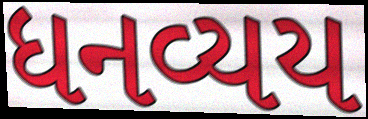
ધનવ્યય